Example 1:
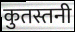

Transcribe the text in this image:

कुतस्तनी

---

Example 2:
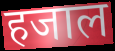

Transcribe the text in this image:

हजाल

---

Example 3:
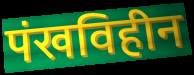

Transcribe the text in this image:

पंखविहीन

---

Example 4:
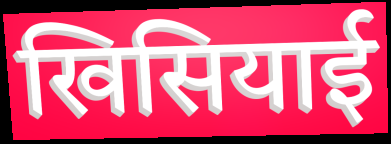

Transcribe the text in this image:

खिसियाई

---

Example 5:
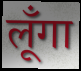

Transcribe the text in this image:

लूँगा